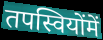
तपस्वियोंमें